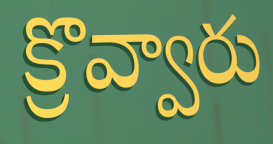
క్రొవ్వారు